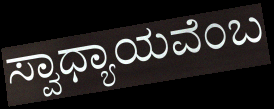
ಸ್ವಾಧ್ಯಾಯವೆಂಬ